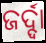
ଜର୍ଦ୍ଦା